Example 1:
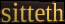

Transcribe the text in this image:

sitteth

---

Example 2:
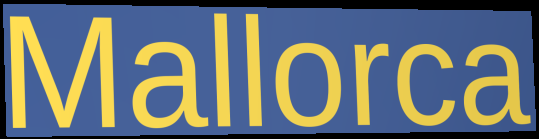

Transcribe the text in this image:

Mallorca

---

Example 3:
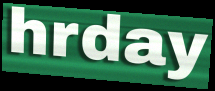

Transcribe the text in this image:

hrday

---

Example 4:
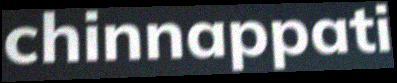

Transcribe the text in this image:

chinnappati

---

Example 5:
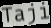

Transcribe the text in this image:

Taji